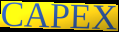
CAPEX